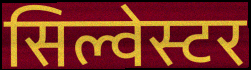
सिल्वेस्टर